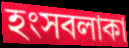
হংসবলাকা